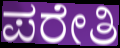
ಪರೇತಿ